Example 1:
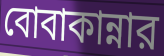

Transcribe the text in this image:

বোবাকান্নার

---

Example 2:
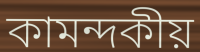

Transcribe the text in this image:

কামন্দকীয়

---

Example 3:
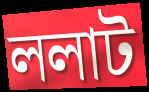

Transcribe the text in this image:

ললাট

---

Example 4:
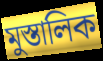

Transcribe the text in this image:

মুস্তালিক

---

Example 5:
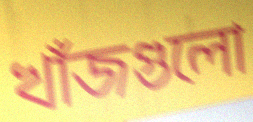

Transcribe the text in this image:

খাঁজগুলো